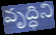
వృద్ధిని